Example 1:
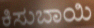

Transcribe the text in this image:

ಕಿಸುಬಾಯಿ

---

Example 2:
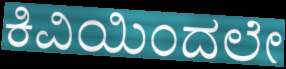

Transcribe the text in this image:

ಕಿವಿಯಿಂದಲೇ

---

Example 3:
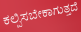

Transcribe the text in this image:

ಕಲ್ಪಿಸಬೇಕಾಗುತ್ತದೆ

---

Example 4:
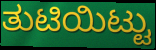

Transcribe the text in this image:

ತುಟಿಯಿಟ್ಟು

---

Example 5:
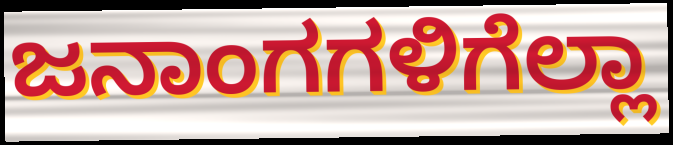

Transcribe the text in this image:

ಜನಾಂಗಗಳಿಗೆಲ್ಲಾ